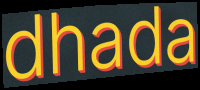
dhada